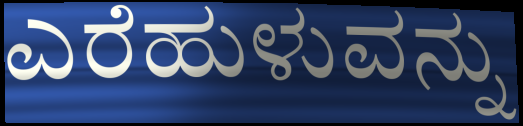
ಎರೆಹುಳುವನ್ನು